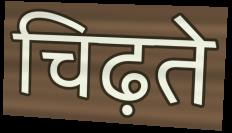
चिढ़ते